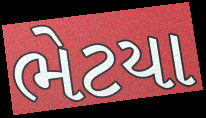
ભેટયા